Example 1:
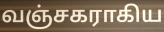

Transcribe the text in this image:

வஞ்சகராகிய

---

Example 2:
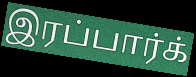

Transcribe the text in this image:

இரப்பார்க்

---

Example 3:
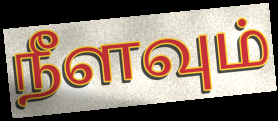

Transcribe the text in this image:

நீளவும்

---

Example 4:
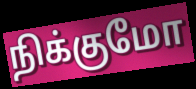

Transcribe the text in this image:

நிக்குமோ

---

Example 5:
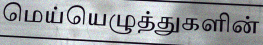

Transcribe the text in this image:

மெய்யெழுத்துகளின்